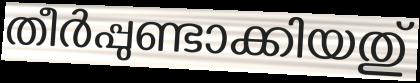
തീർപ്പുണ്ടാക്കിയതു്